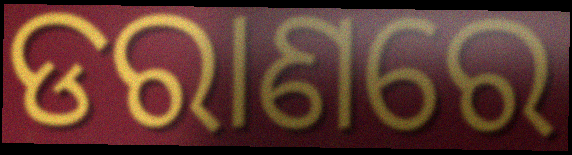
ଡରାଣରେ